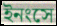
ইনংসে